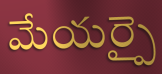
మేయర్పై